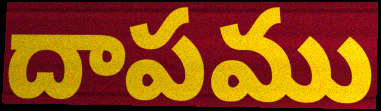
దాపము